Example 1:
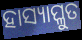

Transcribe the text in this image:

ହାସ୍ୟାପ୍ଳୁତ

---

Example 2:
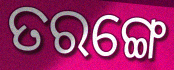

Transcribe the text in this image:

ତରଙ୍ଗେ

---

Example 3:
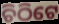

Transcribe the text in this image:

ଚିଠିଟେ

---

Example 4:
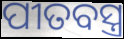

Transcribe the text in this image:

ପୀତବସ୍ତ୍ର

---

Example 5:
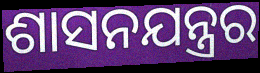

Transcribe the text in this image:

ଶାସନଯନ୍ତ୍ରର